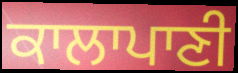
ਕਾਲਾਪਾਣੀ